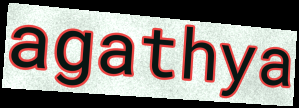
agathya